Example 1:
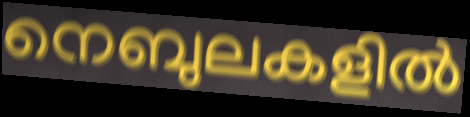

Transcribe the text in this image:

നെബുലകളിൽ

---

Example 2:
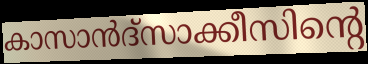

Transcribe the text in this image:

കാസാൻദ്സാക്കീസിന്റെ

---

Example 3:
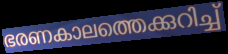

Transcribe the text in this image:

ഭരണകാലത്തെക്കുറിച്ച്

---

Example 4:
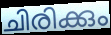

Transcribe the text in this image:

ചിരിക്കും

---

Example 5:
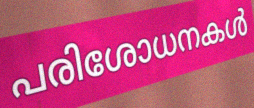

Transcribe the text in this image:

പരിശോധനകൾ